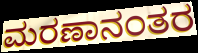
ಮರಣಾನಂತರ